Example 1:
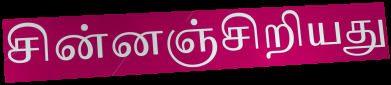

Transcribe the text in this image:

சின்னஞ்சிறியது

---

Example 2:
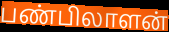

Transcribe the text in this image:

பண்பிலாளன்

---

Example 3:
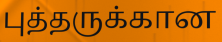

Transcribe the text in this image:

புத்தருக்கான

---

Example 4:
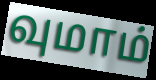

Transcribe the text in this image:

வுமாம்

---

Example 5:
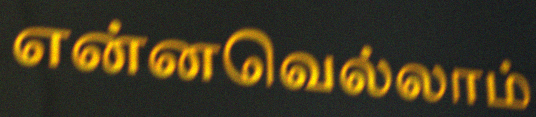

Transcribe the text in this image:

என்னவெல்லாம்